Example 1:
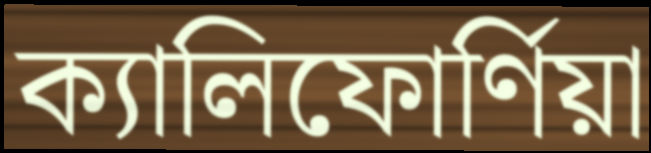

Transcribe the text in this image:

ক্যালিফোর্ণিয়া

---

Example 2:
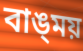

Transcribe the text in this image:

বাঙ্‌ময়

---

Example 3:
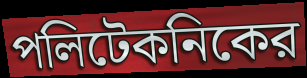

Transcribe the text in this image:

পলিটেকনিকের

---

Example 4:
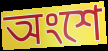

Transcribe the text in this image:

অংশে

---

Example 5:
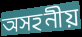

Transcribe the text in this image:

অসহনীয়